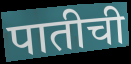
पातीची